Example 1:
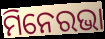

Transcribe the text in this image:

ମିନେରଭା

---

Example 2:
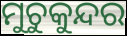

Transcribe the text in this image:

ମୁଚୁକୁନ୍ଦର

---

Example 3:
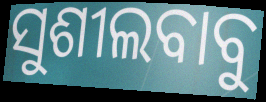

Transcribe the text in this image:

ସୁଶୀଲବାବୁ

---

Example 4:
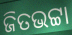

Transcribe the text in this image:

ଜିତଭଟ୍ଟା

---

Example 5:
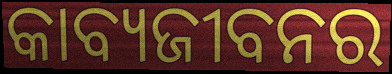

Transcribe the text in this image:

କାବ୍ୟଜୀବନର